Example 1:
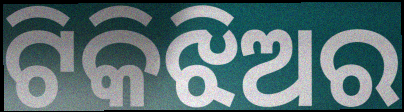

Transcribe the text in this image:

ଟିକିଝିଅର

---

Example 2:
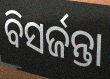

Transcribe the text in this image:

ବିସର୍ଜନ୍ତା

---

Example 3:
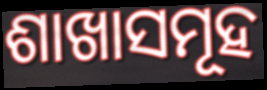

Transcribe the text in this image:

ଶାଖାସମୂହ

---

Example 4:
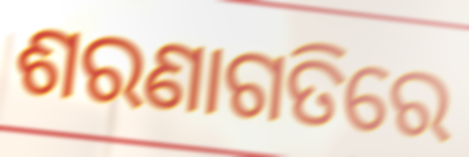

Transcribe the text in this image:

ଶରଣାଗତିରେ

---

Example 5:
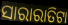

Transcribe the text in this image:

ସାରାରାତିଟା